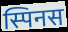
स्पिनस